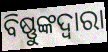
ବିଷ୍ଣୁଙ୍କଦ୍ୱାରା